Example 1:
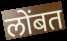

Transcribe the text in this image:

लोंबत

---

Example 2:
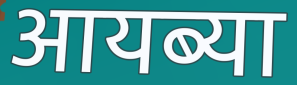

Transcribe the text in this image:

आयब्या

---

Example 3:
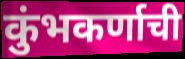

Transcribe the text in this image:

कुंभकर्णाची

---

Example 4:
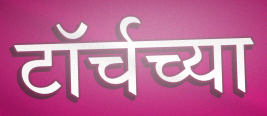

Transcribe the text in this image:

टॉर्चच्या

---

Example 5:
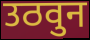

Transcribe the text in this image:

उठवुन